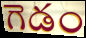
గెడం